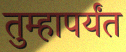
तुम्हापर्यंत